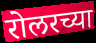
रोलरच्या